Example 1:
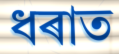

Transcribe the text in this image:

ধৰাত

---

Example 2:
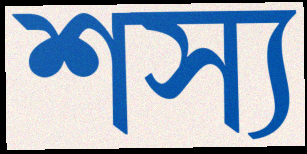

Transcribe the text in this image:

শস্য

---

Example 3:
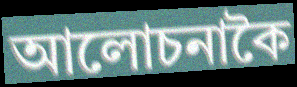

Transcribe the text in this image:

আলোচনাকৈ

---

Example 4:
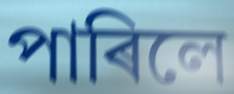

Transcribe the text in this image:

পাৰিলে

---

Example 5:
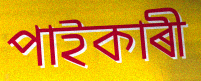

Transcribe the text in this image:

পাইকাৰী